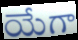
యేగా